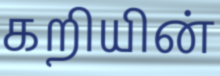
கறியின்